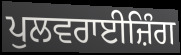
ਪੁਲਵਰਾਈਜ਼ਿੰਗ